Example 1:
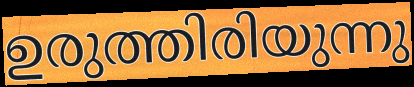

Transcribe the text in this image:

ഉരുത്തിരിയുന്നു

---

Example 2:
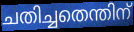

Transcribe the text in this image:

ചതിച്ചതെന്തിന്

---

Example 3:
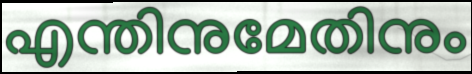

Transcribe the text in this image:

എന്തിനുമേതിനും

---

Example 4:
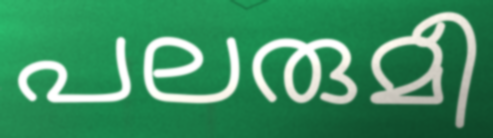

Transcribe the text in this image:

പലരുമീ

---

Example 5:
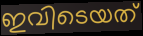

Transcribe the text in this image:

ഇവിടെയത്